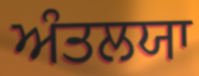
ਅੰਤਲਯਾ